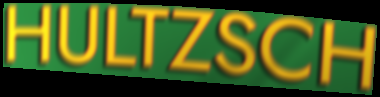
HULTZSCH